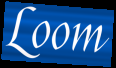
Loom